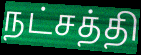
நட்சத்தி